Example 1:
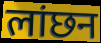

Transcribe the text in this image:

लांछन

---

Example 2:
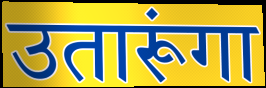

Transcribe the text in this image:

उतारूंगा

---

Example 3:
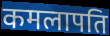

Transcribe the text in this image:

कमलापति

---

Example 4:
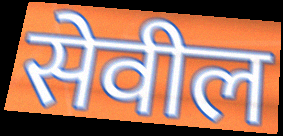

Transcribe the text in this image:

सेवील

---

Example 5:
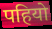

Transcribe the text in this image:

पहियो